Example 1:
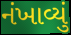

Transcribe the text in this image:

નંખાવ્યું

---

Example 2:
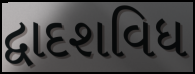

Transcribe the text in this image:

દ્વાદશવિધ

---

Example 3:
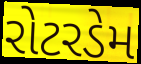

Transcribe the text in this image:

રોટરડેમ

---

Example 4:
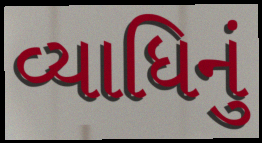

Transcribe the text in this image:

વ્યાધિનું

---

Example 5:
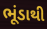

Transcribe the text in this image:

ભૂંડાથી